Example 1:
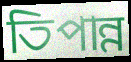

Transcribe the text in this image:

তিপান্ন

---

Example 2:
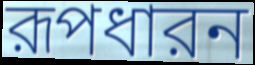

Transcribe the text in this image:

রূপধারন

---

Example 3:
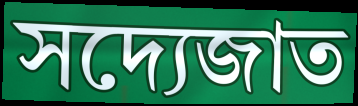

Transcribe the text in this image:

সদ্যেজাত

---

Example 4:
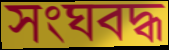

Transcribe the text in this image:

সংঘবদ্ধ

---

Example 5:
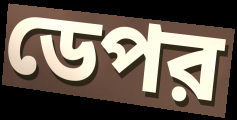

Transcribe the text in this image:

ডেপর